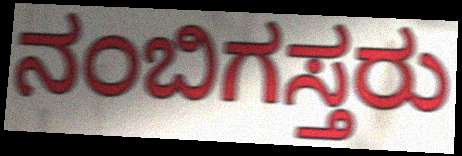
ನಂಬಿಗಸ್ತರು